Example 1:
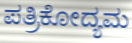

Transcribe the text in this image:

ಪತ್ರಿಕೋದ್ಯಮ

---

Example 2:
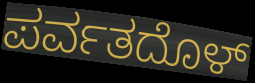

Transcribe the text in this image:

ಪರ್ವತದೊಳ್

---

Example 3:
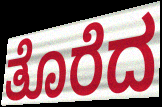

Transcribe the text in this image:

ತೊರೆದ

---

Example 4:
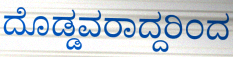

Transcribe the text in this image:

ದೊಡ್ಡವರಾದ್ದರಿಂದ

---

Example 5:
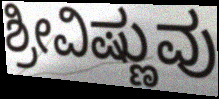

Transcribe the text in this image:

ಶ್ರೀವಿಷ್ಣುವು